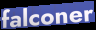
falconer